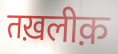
तख़लीक़